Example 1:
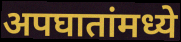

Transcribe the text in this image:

अपघातांमध्ये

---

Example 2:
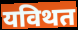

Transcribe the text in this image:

यविथत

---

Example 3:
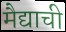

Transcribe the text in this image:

मैद्याची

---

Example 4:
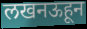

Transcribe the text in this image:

लखनऊहून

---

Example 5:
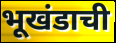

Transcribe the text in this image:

भूखंडाची